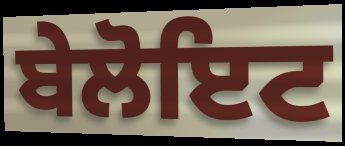
ਬੇਲੋਇਟ